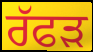
ਰੱਫੜ